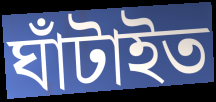
ঘাঁটাইত